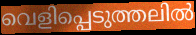
വെളിപ്പെടുത്തലിൽ